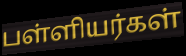
பள்ளியர்கள்